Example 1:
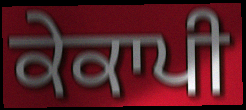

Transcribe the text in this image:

ਕੇਕਾਪੀ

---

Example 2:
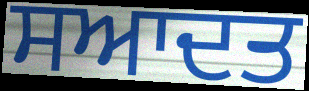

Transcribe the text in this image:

ਸਆਦਤ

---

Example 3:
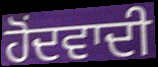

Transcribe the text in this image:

ਹੋਂਦਵਾਦੀ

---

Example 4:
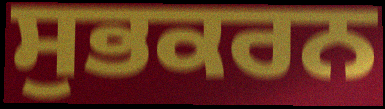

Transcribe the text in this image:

ਸੁਭਕਰਨ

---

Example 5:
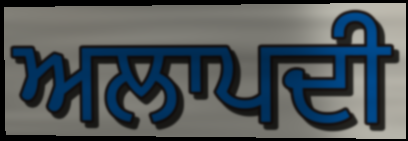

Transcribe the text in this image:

ਅਲਾਪਦੀ